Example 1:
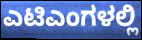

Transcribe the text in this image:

ಎಟಿಎಂಗಳಲ್ಲಿ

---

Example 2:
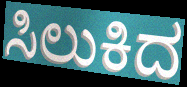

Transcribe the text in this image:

ಸಿಲುಕಿದ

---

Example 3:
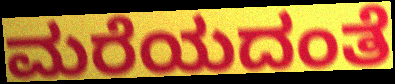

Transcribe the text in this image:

ಮರೆಯದಂತೆ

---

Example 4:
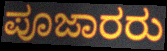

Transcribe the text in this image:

ಪೂಜಾರರು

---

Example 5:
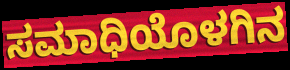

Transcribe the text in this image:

ಸಮಾಧಿಯೊಳಗಿನ